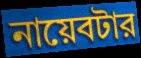
নায়েবটার